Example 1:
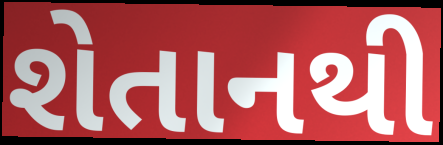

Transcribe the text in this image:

શેતાનથી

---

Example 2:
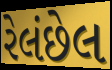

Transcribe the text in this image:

રેલંછેલ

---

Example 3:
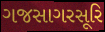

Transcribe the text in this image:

ગજસાગરસૂરિ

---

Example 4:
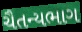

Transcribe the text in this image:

ચૈતન્યભાગ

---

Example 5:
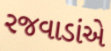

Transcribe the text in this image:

રજવાડાંએ